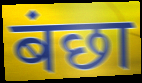
बंछा